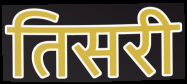
तिसरी